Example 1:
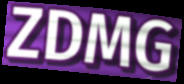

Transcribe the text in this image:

ZDMG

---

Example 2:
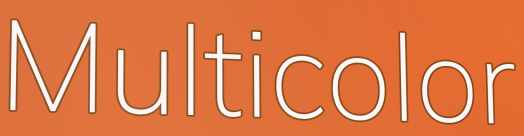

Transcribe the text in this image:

Multicolor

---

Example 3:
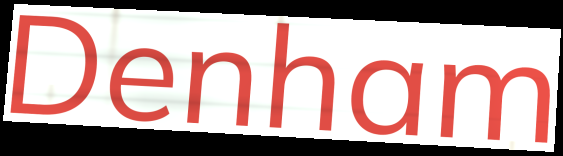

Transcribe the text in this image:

Denham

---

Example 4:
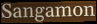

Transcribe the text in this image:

Sangamon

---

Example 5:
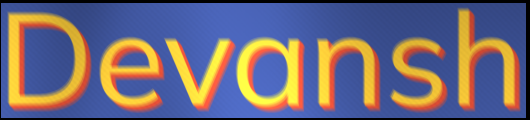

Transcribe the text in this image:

Devansh